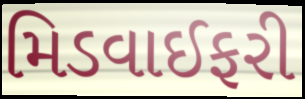
મિડવાઈફરી